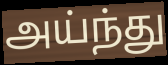
அய்ந்து